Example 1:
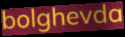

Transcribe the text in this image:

bolghevda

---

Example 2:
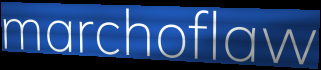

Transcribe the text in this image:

marchoflaw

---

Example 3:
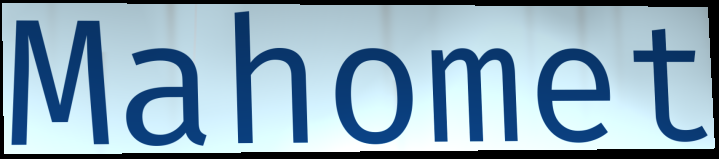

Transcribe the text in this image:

Mahomet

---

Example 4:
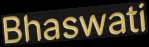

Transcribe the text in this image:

Bhaswati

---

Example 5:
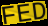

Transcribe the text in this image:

FED